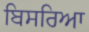
ਬਿਸਰਿਆ